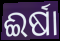
ଈର୍ଷା